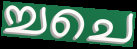
ച്ചചെ